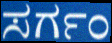
ಸರ್ಗಂ